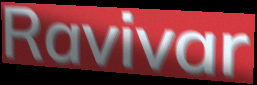
Ravivar